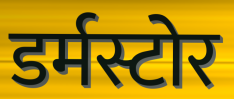
डर्मस्टोर